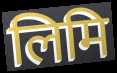
लिमि